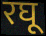
रघू